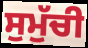
ਸੁਮੁੱਚੀ